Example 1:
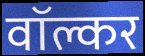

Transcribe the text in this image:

वॉल्कर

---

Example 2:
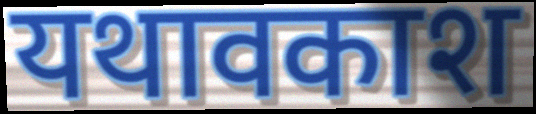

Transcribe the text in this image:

यथावकाश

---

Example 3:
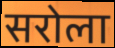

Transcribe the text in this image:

सरोला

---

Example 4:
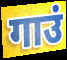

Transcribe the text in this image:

गाउं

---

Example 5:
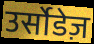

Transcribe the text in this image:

उर्सोडेज़